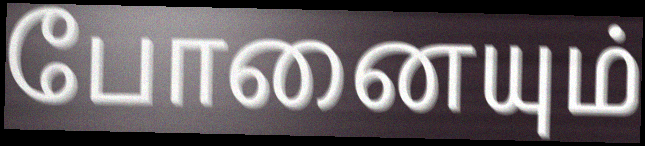
போனையும்